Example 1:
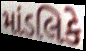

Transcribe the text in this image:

માંડલિકે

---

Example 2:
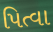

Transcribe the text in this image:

પિત્વા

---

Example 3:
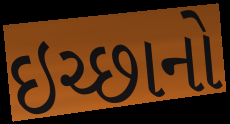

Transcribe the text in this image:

ઇચ્છાનો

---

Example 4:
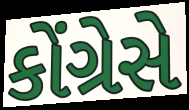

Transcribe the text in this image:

કોંગ્રેસે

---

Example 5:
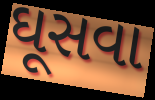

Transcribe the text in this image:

ઘૂસવા